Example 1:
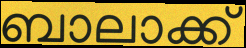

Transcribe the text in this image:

ബാലാക്ക്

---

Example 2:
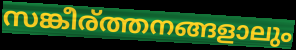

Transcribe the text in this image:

സങ്കീര്ത്തനങ്ങളാലും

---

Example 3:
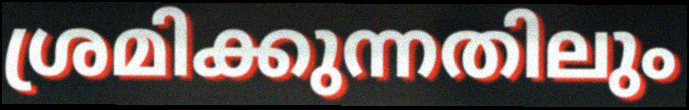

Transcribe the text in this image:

ശ്രമിക്കുന്നതിലും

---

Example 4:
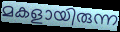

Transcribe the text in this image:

മകളായിരുന്ന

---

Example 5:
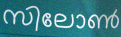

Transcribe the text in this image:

സിലോൺ